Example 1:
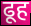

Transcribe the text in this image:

ढूह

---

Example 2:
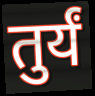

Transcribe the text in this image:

तुर्यं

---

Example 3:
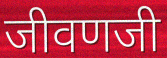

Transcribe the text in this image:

जीवणजी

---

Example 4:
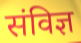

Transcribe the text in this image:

संविज्ञ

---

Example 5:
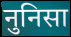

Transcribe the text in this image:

नुनिसा